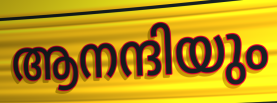
ആനന്ദിയും